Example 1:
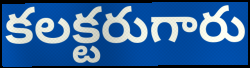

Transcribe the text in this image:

కలక్టరుగారు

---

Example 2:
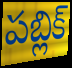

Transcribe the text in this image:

పబ్లిక్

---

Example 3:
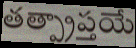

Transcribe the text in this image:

తత్ప్రాప్తయే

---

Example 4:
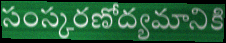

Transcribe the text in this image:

సంస్కరణోద్యమానికి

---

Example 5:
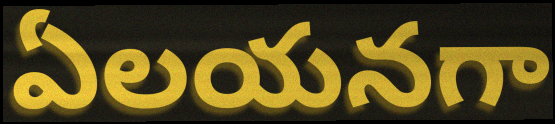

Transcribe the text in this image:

ఏలయనగా